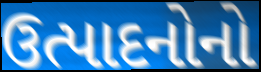
ઉત્પાદનોનો